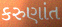
કરુણાંત